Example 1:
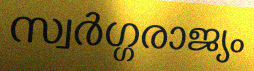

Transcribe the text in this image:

സ്വർഗ്ഗരാജ്യം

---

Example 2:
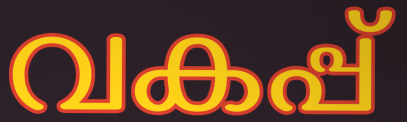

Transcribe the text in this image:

വകപ്പ്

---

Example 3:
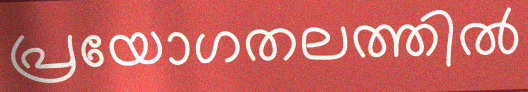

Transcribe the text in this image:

പ്രയോഗതലത്തിൽ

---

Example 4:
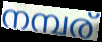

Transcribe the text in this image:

നമ്പര്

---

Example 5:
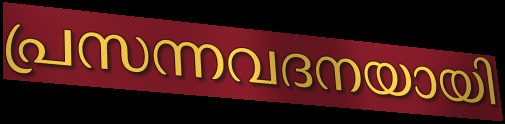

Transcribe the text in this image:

പ്രസന്നവദനയായി